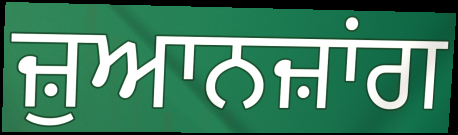
ਜ਼ੁਆਨਜ਼ਾਂਗ